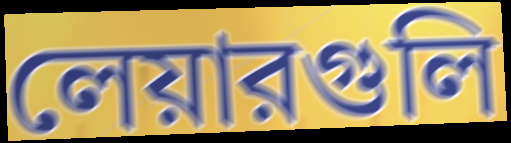
লেয়ারগুলি